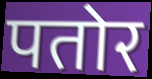
पतोर